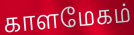
காளமேகம்